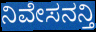
ನಿವೇಸನನ್ತಿ